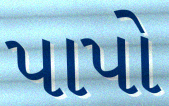
પાપો